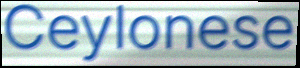
Ceylonese